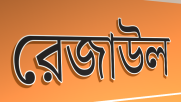
রেজাউল